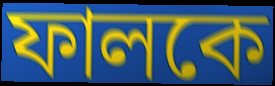
ফালকে